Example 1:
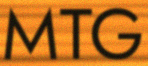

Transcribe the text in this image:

MTG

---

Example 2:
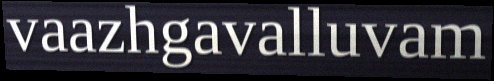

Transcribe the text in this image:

vaazhgavalluvam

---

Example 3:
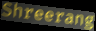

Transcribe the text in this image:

Shreerang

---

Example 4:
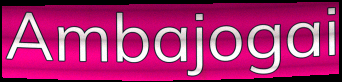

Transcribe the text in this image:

Ambajogai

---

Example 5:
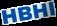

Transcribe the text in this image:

HBHI